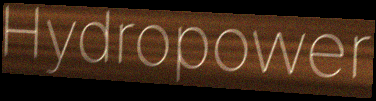
Hydropower